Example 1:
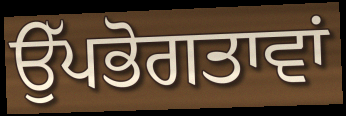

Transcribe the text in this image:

ਉੱਪਭੋਗਤਾਵਾਂ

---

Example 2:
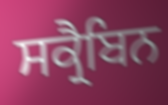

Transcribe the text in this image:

ਸਕ੍ਰੈਬਿਨ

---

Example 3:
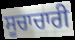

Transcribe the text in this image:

ਸੂਚਾਚਾਰੀ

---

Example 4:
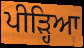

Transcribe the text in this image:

ਪੀੜ੍ਹਿਆ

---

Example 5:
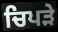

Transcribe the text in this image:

ਚਿਪੜੇ